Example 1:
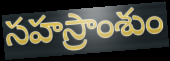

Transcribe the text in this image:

సహస్రాంశుం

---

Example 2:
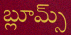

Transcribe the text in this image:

బ్లూమ్స్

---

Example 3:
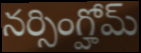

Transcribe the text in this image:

నర్సింగ్హోమ్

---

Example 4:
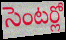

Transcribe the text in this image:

సెంటర్లో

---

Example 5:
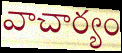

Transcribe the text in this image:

వాచార్యం